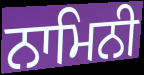
ਨਾਮਿਨੀ